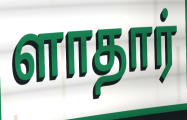
ளாதார்